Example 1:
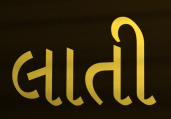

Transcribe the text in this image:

લાતી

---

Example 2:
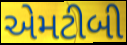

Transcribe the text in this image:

એમટીબી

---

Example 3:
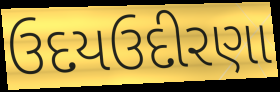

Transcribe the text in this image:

ઉદયઉદીરણા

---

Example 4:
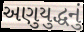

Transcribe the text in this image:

અણુયુદ્ધનું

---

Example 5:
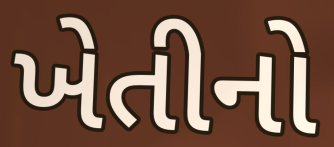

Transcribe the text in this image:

ખેતીનો